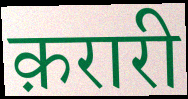
क़रारी